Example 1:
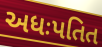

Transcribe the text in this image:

અધઃપતિત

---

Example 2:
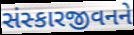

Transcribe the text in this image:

સંસ્કારજીવનને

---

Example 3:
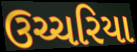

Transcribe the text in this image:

ઉચ્ચરિયા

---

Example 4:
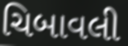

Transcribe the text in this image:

ચિબાવલી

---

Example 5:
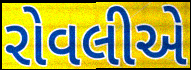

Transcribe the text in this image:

રોવલીએ